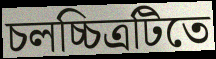
চলচ্চিত্রটিতে